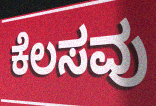
ಕೆಲಸವು